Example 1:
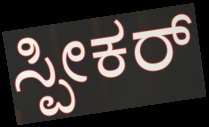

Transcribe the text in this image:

ಸ್ಪೀಕರ್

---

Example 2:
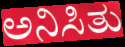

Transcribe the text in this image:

ಅನಿಸಿತು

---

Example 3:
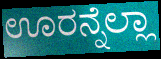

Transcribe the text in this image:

ಊರನ್ನೆಲ್ಲಾ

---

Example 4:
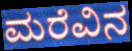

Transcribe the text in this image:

ಮರೆವಿನ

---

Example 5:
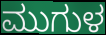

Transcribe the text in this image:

ಮುಗುಳ